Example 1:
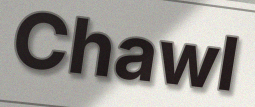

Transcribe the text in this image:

Chawl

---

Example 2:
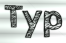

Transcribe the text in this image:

Typ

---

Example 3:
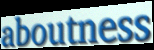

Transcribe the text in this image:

aboutness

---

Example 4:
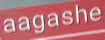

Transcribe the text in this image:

aagashe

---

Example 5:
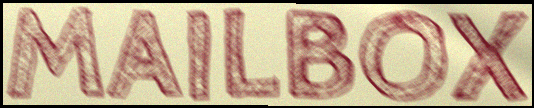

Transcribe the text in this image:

MAILBOX